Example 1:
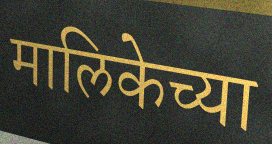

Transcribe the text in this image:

मालिकेच्या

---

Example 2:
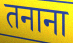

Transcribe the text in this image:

तनाना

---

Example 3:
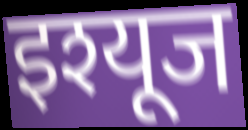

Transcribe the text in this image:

इश्यूज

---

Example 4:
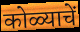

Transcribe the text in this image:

कोळ्याचें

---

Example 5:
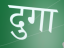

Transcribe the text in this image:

दुगा